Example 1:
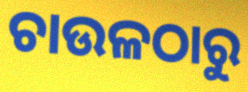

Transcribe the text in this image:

ଚାଉଳଠାରୁ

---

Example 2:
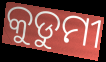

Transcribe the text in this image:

କୁଡୁମୀ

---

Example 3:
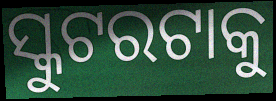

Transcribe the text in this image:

ସ୍କୁଟରଟାକୁ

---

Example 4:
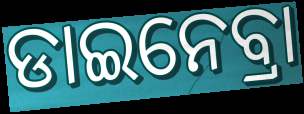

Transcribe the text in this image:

ଡାଇନେବ୍ରା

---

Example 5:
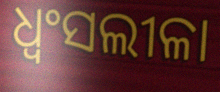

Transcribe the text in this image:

ଧ୍ବଂସଲୀଳା